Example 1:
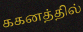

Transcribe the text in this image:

ககனத்தில்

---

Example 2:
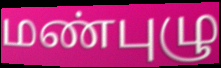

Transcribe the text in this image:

மண்புழு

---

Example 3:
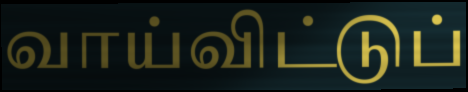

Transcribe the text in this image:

வாய்விட்டுப்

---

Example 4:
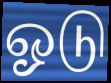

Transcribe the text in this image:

ஓடு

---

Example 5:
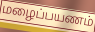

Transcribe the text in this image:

மழைப்பயணம்